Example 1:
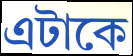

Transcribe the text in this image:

এটাকে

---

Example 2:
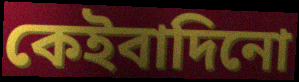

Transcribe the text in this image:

কেইবাদিনো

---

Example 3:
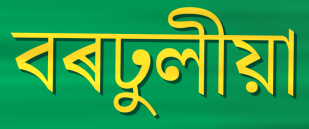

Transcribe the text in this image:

বৰঢুলীয়া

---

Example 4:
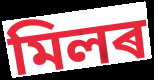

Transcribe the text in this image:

মিলৰ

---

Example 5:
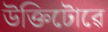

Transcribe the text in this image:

উক্তিটোৱে